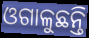
ଓଗାଳୁଛନ୍ତି